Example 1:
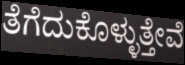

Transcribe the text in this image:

ತೆಗೆದುಕೊಳ್ಳುತ್ತೇವೆ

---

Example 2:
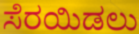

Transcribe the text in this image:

ಸೆರಯಿಡಲು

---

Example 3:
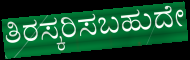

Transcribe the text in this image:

ತಿರಸ್ಕರಿಸಬಹುದೇ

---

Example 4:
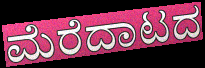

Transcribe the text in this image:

ಮೆರೆದಾಟದ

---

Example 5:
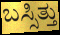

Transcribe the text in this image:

ಬಸ್ಸಿತ್ತು